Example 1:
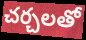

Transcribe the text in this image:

చర్చలతో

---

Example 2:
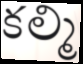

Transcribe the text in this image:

కల్మి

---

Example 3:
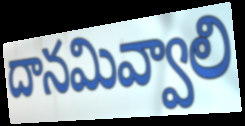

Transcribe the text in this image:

దానమివ్వాలి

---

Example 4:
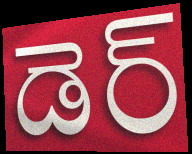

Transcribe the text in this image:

డెర్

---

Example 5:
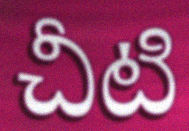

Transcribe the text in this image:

చీటి